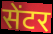
सेंटर